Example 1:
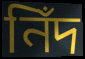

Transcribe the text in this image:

নিঁদ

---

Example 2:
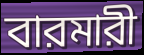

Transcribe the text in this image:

বারমারী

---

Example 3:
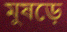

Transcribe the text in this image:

মুষড়ে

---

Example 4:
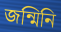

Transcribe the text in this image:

জন্মিনি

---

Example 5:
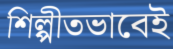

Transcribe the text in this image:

শিল্পীতভাবেই